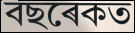
বছৰেকত